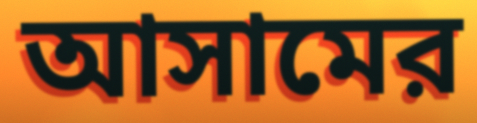
আসামের